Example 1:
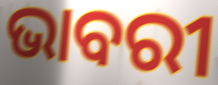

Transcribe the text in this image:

ଭାବରୀ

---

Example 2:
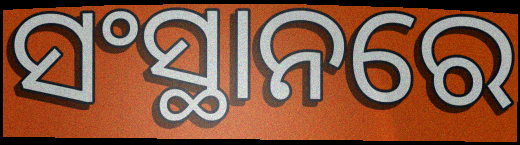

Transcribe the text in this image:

ସଂସ୍ଥାନରେ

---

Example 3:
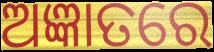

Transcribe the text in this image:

ଅଜ୍ଞାତରେ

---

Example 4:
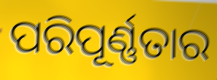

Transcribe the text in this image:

ପରିପୂର୍ଣ୍ଣତାର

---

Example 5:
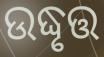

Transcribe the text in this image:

ଉଦ୍ଧୃତ୍ତ